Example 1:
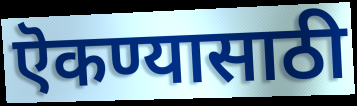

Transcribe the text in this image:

ऎकण्यासाठी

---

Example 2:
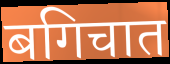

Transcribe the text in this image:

बगिचात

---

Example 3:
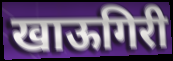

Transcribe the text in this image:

खाऊगिरी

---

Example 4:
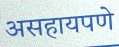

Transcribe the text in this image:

असहायपणे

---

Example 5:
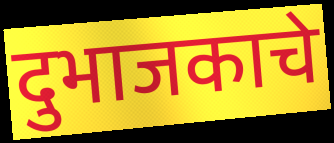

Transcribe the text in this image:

दुभाजकाचे